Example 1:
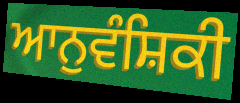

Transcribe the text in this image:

ਆਨੁਵੰਸ਼ਿਕੀ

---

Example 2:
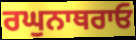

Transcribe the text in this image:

ਰਘੁਨਾਥਰਾਓ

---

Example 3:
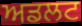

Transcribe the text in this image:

ਅਡਲਟ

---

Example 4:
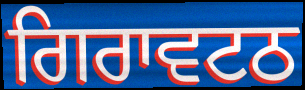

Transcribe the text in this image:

ਗਿਰਾਵਟਠ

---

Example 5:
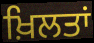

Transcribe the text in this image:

ਖ਼ਿਲਤਾਂ